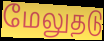
மேலுதடு